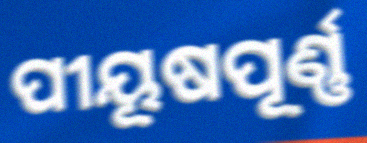
ପୀୟୂଷପୂର୍ଣ୍ଣ